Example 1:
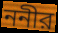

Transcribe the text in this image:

ননীর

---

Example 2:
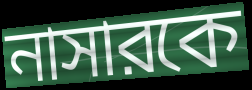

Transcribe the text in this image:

নাসারকে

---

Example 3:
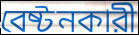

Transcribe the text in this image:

বেষ্টনকারী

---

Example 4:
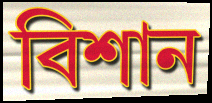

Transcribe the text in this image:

বিশান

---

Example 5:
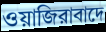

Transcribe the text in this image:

ওয়াজিরাবাদে